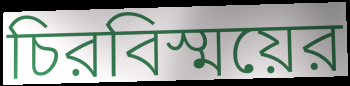
চিরবিস্ময়ের